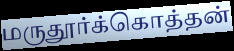
மருதூர்க்கொத்தன்